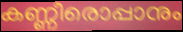
കണ്ണീരൊപ്പാനും